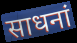
साधनां